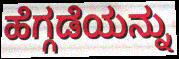
ಹೆಗ್ಗಡೆಯನ್ನು